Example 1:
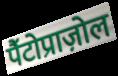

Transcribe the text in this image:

पैंटोप्राज़ोल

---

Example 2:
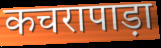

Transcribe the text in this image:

कचरापाड़ा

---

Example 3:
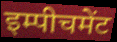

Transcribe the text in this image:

इम्पीचमेंट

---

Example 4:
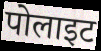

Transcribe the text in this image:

पोलाइट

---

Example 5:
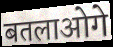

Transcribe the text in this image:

बतलाओगे